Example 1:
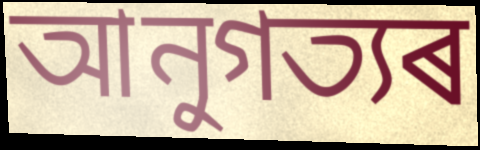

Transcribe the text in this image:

আনুগত্যৰ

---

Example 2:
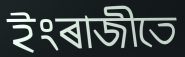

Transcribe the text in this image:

ইংৰাজীতে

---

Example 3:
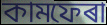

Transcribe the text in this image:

কামফেৰা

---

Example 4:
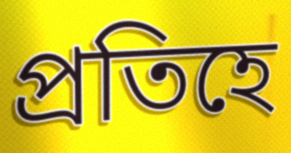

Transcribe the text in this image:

প্ৰতিহে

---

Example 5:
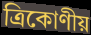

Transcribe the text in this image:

ত্ৰিকোণীয়